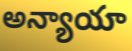
అన్యాయా